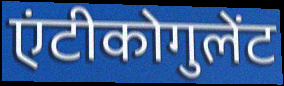
एंटीकोगुलेंट